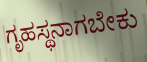
ಗೃಹಸ್ಥನಾಗಬೇಕು